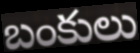
బంకులు